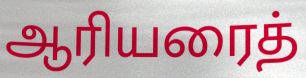
ஆரியரைத்